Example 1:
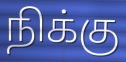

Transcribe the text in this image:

நிக்கு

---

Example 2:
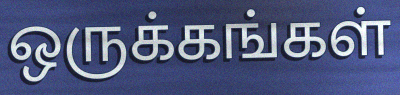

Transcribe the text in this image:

ஒருக்கங்கள்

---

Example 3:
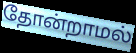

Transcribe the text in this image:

தோன்றாமல்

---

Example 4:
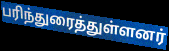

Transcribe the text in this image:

பரிந்துரைத்துள்ளனர்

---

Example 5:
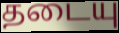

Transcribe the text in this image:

தடையு